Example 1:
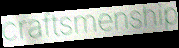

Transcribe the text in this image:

craftsmenship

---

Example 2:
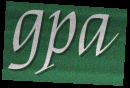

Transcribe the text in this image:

gpa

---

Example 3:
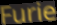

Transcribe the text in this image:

Furie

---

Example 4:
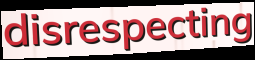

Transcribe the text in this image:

disrespecting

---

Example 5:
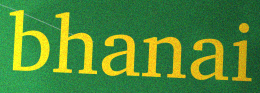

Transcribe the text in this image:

bhanai